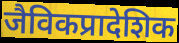
जैविकप्रादेशिक